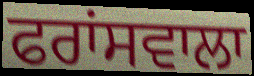
ਫਰਾਂਸਵਾਲਾ